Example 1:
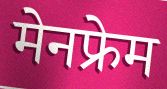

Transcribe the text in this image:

मेनफ्रेम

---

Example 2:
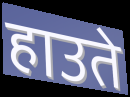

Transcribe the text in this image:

हाउते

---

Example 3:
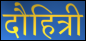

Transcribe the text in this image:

दौहित्री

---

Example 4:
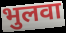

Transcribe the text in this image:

भुलवा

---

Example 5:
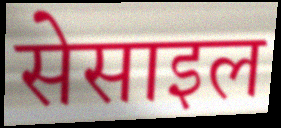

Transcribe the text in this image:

सेसाइल